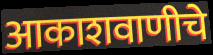
आकाशवाणीचे